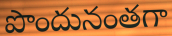
పొందునంతగా